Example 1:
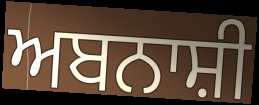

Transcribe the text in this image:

ਅਬਨਾਸ਼ੀ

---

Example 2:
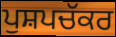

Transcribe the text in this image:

ਪੁਸ਼ਪਚੱਕਰ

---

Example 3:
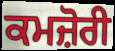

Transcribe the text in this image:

ਕਮਜ਼ੋਰੀ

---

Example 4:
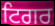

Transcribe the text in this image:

ਟਿਗਰ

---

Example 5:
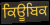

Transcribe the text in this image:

ਕਿਊਬਿਕ